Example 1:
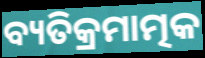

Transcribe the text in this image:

ବ୍ୟତିକ୍ରମାତ୍ମକ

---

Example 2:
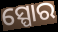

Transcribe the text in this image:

ସ୍ପୋର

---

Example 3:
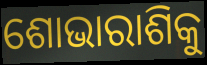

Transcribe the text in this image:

ଶୋଭାରାଶିକୁ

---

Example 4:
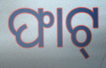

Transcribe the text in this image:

ଫାଟ୍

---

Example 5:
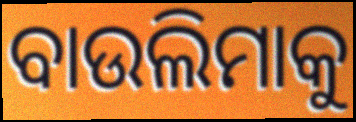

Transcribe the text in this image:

ବାଉଲିମାକୁ